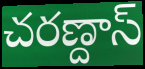
చరణ్దాస్